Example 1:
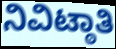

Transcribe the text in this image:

ನಿವಿಟ್ಠಾತಿ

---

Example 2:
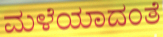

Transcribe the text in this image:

ಮಳೆಯಾದಂತೆ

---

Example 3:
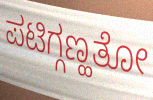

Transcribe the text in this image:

ಪಟಿಗ್ಗಣ್ಹತೋ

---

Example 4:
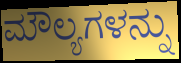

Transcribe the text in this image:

ಮೌಲ್ಯಗಳನ್ನು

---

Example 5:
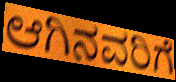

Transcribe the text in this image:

ಆಗಿನವರಿಗೆ